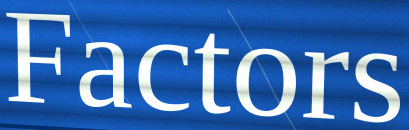
Factors